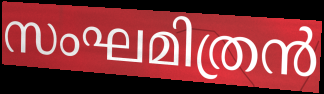
സംഘമിത്രൻ